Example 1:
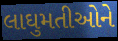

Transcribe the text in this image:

લાઘુમતીઓને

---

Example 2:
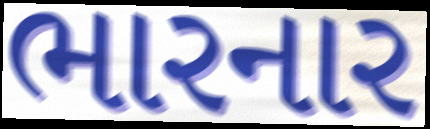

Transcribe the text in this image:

ભારનાર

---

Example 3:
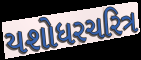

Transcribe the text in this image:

યશોધરચરિત્ર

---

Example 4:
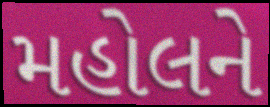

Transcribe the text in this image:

મહોલને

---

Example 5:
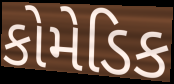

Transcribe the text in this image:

કોમેડિક